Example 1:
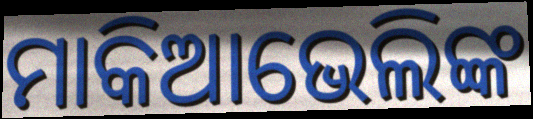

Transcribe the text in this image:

ମାକିଆଭେଲିଙ୍କ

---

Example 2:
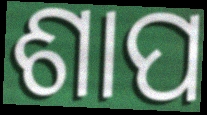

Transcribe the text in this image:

ଶାପ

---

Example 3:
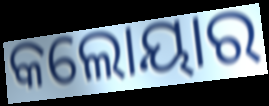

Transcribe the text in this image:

କଲୋୟାର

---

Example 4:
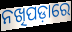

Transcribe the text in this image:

ନଖିପଡ଼ାରେ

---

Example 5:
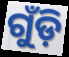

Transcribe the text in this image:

ଗୁଁଡ଼ି